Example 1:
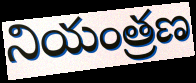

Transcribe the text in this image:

నియంత్రణ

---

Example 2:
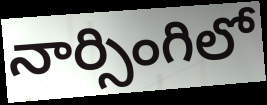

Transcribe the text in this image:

నార్సింగిలో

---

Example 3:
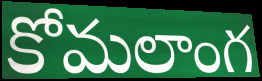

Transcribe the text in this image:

కోమలాంగ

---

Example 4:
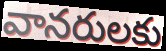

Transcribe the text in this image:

వానరులకు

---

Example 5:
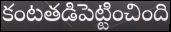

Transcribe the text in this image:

కంటతడిపెట్టించింది